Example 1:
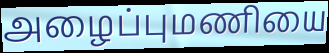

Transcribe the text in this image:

அழைப்புமணியை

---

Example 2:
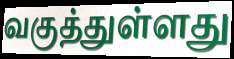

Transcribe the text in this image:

வகுத்துள்ளது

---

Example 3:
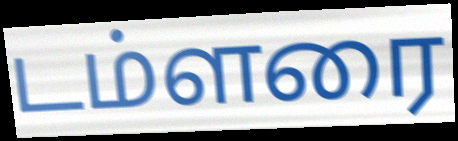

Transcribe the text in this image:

டம்ளரை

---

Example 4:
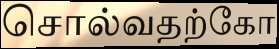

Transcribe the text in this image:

சொல்வதற்கோ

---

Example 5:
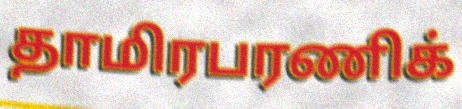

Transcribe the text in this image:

தாமிரபரணிக்